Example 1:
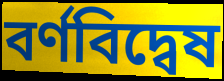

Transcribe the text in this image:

বর্ণবিদ্বেষ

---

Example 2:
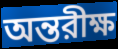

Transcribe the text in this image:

অন্তরীক্ষ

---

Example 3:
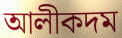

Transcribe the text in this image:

আলীকদম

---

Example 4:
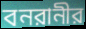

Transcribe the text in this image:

বনরানীর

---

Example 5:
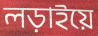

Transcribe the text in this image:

লড়াইয়ে